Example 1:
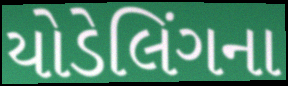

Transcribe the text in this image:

યોડેલિંગના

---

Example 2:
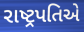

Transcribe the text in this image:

રાષ્ટ્રપતિએ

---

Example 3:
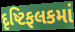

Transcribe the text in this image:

દૃષ્ટિફલકમાં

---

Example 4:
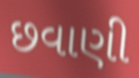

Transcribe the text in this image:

છવાણી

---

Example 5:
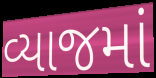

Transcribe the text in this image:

વ્યાજમાં